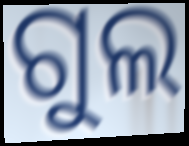
ଗୁଲ